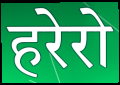
हरेरो